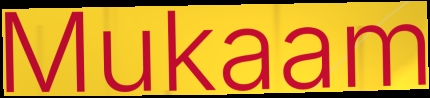
Mukaam